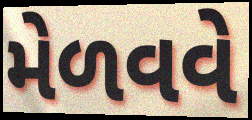
મેળવવે